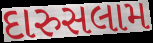
દારુસલામ